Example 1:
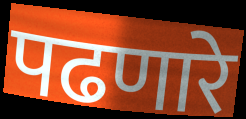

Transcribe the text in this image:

पढणारे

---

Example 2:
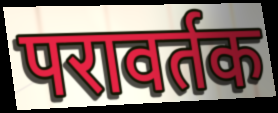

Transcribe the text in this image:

परावर्तक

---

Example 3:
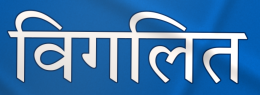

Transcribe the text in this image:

विगलित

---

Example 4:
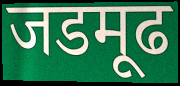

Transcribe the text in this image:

जडमूढ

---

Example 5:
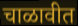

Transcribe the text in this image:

चाळावीत